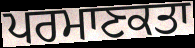
ਪਰਮਾਣਕਤਾ